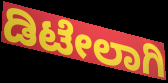
ಡಿಟೇಲಾಗಿ